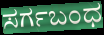
ಸರ್ಗಬಂಧ